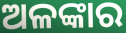
ଅଳଙ୍କାର